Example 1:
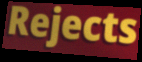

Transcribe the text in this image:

Rejects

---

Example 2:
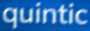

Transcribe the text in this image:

quintic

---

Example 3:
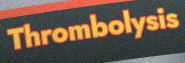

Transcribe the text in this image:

Thrombolysis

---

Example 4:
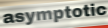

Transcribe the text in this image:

asymptotic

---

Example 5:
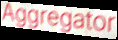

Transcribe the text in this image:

Aggregator